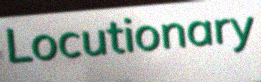
Locutionary